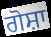
ਗੋਸ਼ਾ